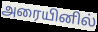
அரையினில்